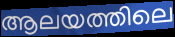
ആലയത്തിലെ